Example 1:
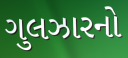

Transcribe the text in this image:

ગુલઝારનો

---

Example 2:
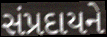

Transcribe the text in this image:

સંપ્રદાયને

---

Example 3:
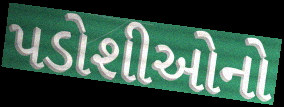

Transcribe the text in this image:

પડોશીઓનો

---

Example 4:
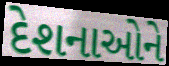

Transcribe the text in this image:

દેશનાઓને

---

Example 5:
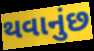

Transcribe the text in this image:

થવાનુંછ